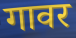
गावर